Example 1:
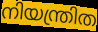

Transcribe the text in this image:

നിയന്ത്രിത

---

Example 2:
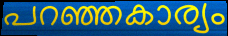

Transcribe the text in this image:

പറഞ്ഞകാര്യം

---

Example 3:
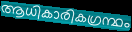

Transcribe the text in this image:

ആധികാരികഗ്രന്ഥം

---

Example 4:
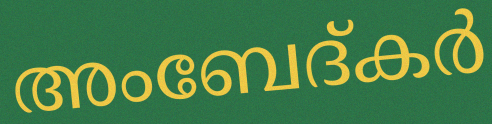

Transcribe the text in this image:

അംബേദ്കർ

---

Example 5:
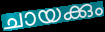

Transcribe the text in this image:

ചായക്കും